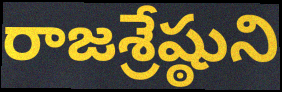
రాజశ్రేష్ఠుని